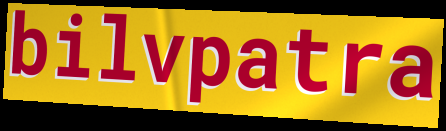
bilvpatra